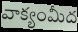
వాక్యంమీద